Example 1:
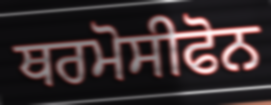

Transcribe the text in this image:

ਥਰਮੋਸੀਫੋਨ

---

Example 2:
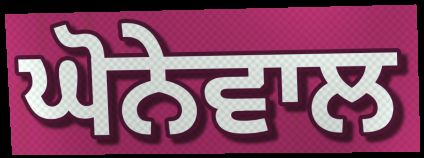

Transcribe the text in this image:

ਘੋਨੇਵਾਲ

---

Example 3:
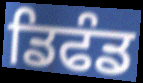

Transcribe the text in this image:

ਡਿਫੰਡ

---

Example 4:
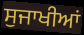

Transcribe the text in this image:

ਸੁਜਾਖੀਆਂ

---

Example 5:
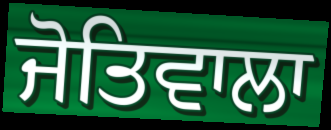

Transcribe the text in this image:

ਜੋਤਿਵਾਲਾ